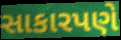
સાકારપણે